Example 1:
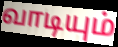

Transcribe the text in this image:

வாடியும்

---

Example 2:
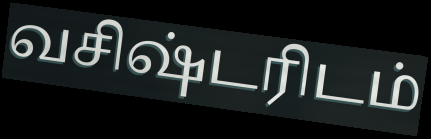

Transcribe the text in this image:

வசிஷ்டரிடம்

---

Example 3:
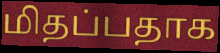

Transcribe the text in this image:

மிதப்பதாக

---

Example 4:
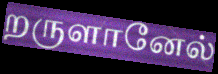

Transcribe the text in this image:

றருளானேல்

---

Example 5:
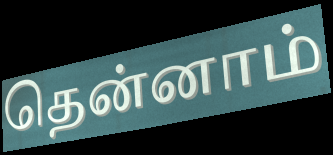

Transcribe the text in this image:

தென்னாம்